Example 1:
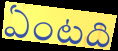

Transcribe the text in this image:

ఏంటది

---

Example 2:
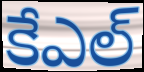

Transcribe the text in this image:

కేఎల్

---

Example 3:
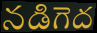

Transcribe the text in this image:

నడిగెద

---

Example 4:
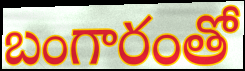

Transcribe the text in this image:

బంగారంతో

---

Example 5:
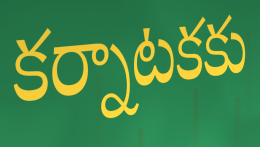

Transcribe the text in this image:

కర్నాటకకు